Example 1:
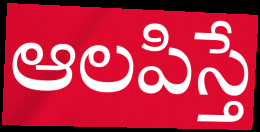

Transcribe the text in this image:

ఆలపిస్తే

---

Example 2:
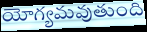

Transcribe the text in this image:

యోగ్యమవుతుంది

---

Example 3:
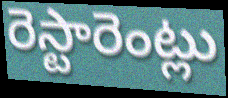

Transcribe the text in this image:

రెస్టారెంట్లు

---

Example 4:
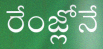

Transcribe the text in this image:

రేంజ్లోనే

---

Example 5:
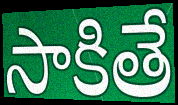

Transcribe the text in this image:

సాకితే